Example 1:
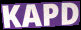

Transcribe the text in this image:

KAPD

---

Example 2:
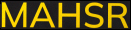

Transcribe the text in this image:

MAHSR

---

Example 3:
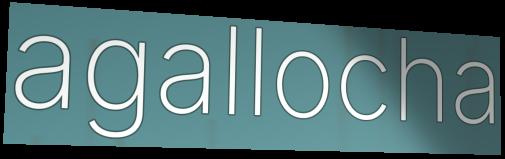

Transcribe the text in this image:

agallocha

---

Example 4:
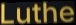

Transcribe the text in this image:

Luthe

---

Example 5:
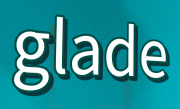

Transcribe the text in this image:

glade